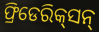
ଫ୍ରିଡେରିକ୍‌ସନ୍